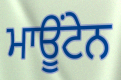
ਮਾਊਂਟੇਨ